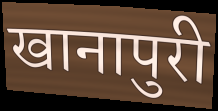
खानापुरी